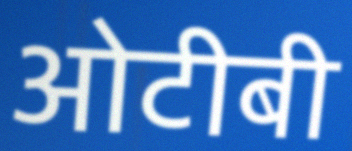
ओटीबी